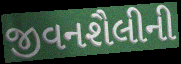
જીવનશૈલીની